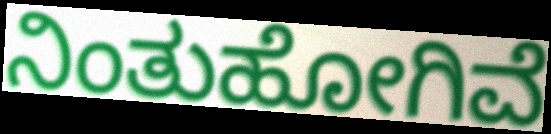
ನಿಂತುಹೋಗಿವೆ